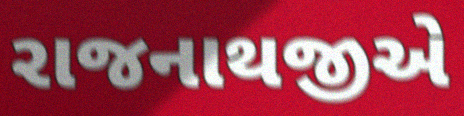
રાજનાથજીએ